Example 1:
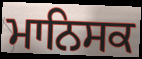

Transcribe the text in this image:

ਮਾਨਿਸਕ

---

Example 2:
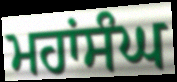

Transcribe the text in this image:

ਮਹਾਂਸੰਘ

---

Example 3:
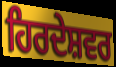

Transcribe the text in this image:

ਹਿਰਦੇਸ਼ਵਰ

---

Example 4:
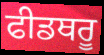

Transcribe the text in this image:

ਫੀਡਥਰੂ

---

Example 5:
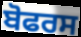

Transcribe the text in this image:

ਬੋਫਰਸ